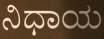
ನಿಧಾಯ